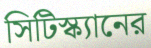
সিটিস্ক্যানের